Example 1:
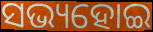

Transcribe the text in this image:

ସଭ୍ୟହୋଇ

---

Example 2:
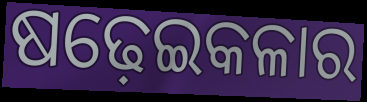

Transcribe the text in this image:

ଷଢ଼େଇକଳାର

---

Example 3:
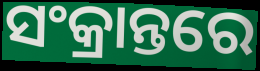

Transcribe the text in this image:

ସଂକ୍ରାନ୍ତରେ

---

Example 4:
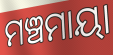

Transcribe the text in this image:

ମଞ୍ଚମାୟା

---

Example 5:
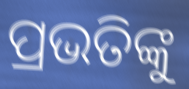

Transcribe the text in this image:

ପ୍ରଭତିଙ୍କୁ